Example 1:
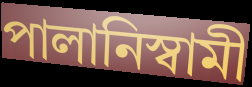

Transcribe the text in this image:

পালানিস্বামী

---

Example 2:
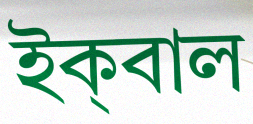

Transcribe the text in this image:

ইক্‌বাল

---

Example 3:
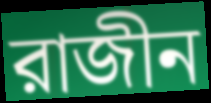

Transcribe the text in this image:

রাজীন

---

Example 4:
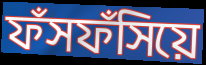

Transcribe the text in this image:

ফঁসফঁসিয়ে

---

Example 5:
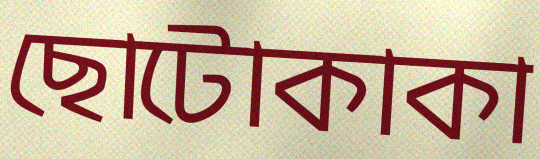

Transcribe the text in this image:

ছোটোকাকা